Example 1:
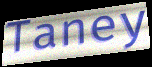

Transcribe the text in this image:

Taney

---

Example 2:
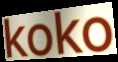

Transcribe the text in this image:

koko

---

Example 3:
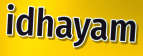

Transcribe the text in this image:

idhayam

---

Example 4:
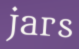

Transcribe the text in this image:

jars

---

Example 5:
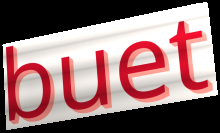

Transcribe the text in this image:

buet